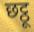
छट्ठू